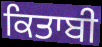
ਕਿਤਾਬੀ